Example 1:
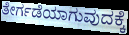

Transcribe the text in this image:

ತೇರ್ಗಡೆಯಾಗುವುದಕ್ಕೆ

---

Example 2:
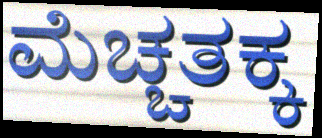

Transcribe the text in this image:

ಮೆಚ್ಚತಕ್ಕ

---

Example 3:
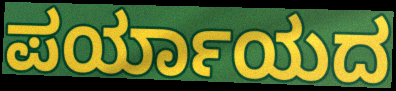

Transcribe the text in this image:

ಪರ್ಯಾಯದ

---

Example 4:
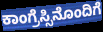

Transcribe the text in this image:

ಕಾಂಗ್ರೆಸ್ಸಿನೊಂದಿಗೆ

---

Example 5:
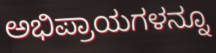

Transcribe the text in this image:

ಅಭಿಪ್ರಾಯಗಳನ್ನೂ